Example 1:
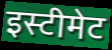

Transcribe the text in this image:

इस्टीमेट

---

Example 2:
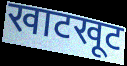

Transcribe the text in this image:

खाटखूट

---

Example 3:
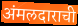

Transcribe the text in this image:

अंमलदाराची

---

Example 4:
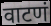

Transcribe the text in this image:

वाटणं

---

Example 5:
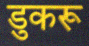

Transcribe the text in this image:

डुकरू